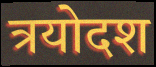
त्रयोदश